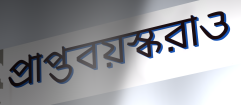
প্রাপ্তবয়স্করাও